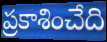
ప్రకాశించేది